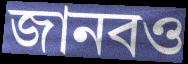
জানবও